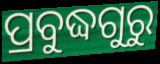
ପ୍ରବୁଦ୍ଧଗୁରୁ